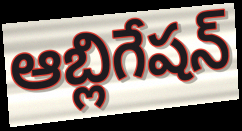
ఆబ్లిగేషన్